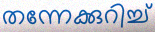
തന്നേക്കുറിച്ച്